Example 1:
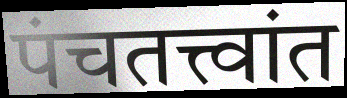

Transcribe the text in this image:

पंचतत्त्वांत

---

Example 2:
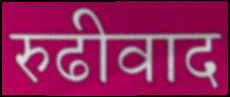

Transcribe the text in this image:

रुढीवाद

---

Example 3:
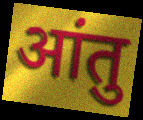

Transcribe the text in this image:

आंतु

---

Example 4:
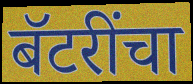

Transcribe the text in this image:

बॅटरींचा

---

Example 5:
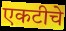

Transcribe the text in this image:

एकटीचे